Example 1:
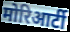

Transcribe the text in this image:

मोरिआर्टी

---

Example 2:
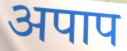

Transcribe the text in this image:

अपाप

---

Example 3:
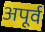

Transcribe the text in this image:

अपूर्व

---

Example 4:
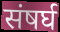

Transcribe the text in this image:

संषर्घ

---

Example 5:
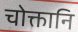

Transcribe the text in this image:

चोक्तानि